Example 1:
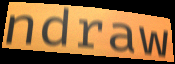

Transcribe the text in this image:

ndraw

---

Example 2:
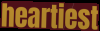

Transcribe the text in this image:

heartiest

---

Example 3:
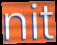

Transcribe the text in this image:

nit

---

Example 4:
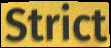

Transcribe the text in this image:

Strict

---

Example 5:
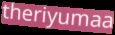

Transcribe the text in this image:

theriyumaa